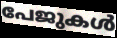
പേജുകൾ